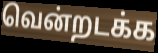
வென்றடக்க